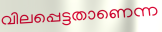
വിലപ്പെട്ടതാണെന്ന